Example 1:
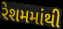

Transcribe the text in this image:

રેશમમાંથી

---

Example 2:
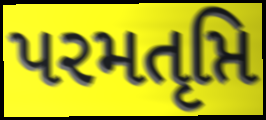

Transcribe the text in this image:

પરમતૃપ્તિ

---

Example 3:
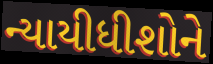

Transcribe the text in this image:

ન્યાયીધીશોને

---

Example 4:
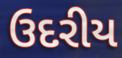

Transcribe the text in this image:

ઉદરીય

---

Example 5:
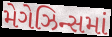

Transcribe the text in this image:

મેગેઝિન્સમાં